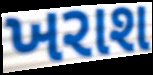
ખરાશ